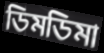
ডিমডিমা